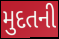
મુદતની